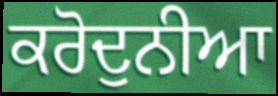
ਕਰੋਦੁਨੀਆ